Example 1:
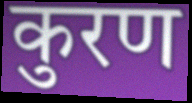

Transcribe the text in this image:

कुरण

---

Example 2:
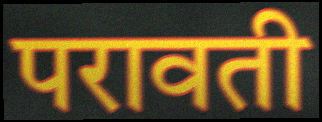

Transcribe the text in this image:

परावती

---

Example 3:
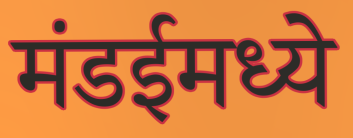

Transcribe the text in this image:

मंडईमध्ये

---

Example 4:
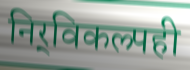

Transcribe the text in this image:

निर्विकल्पही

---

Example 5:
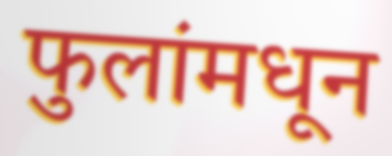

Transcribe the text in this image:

फुलांमधून